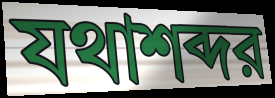
যথাশব্দর